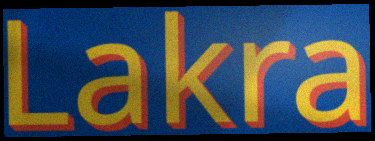
Lakra